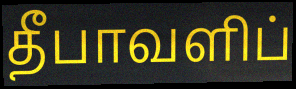
தீபாவளிப்